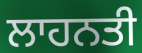
ਲਾਹਨਤੀ